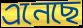
এনেছে